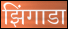
झिंगाडा